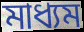
মাধ্যম